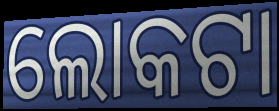
ଲୋକଟା